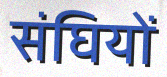
संघियों